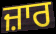
ਜ਼ਾਰ